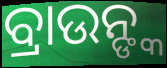
ବ୍ରାଉନ୍ଙ୍କ